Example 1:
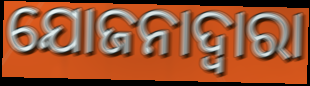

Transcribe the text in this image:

ଯୋଜନାଦ୍ୱାରା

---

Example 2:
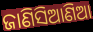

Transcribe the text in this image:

ଜାଣିସିଆଣିଆ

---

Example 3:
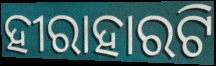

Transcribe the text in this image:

ହୀରାହାରଟି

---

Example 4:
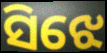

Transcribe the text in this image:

ସିଝେ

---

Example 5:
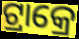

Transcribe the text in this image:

ଟ୍ରାକ୍ରେ